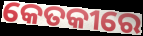
କେତକୀରେ